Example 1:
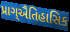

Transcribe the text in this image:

પ્રાગ્ઐતિહાસિક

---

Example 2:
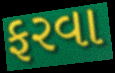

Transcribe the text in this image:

ફરવા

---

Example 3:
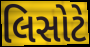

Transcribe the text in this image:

લિસોટે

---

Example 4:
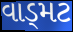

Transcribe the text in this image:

વાડ્મટ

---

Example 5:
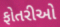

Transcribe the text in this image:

ફોતરીઓ